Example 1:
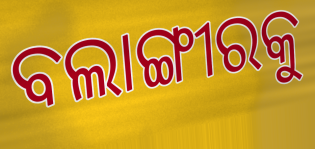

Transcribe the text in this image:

ବଲାଙ୍ଗୀରକୁ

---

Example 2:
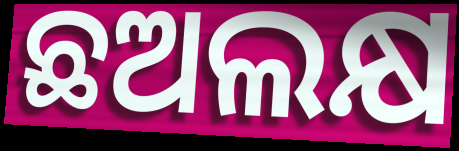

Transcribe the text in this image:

ଛଅଲକ୍ଷ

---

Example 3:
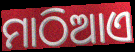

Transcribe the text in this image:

ମାଠିଆଏ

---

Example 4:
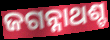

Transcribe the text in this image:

ଜଗନ୍ନାଥଶ୍ଚ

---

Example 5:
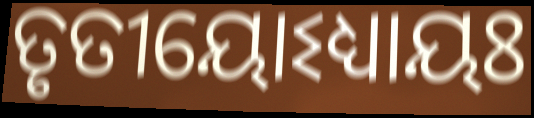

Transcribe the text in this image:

ତୃତୀୟୋଽଧ୍ୟାୟଃ